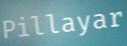
Pillayar